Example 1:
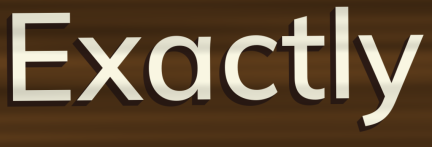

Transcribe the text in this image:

Exactly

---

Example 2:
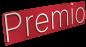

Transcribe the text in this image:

Premio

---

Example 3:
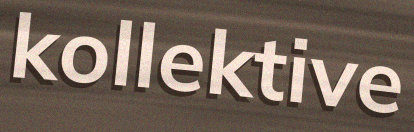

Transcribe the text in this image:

kollektive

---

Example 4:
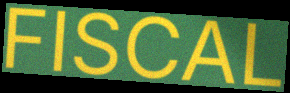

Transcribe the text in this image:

FISCAL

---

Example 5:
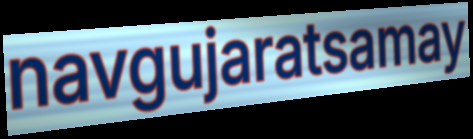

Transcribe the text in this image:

navgujaratsamay